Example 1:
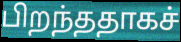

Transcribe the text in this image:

பிறந்ததாகச்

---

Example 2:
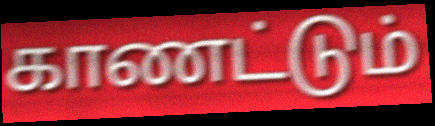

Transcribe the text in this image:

காணட்டும்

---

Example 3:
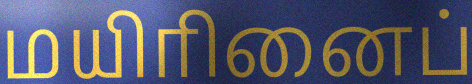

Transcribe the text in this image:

மயிரினைப்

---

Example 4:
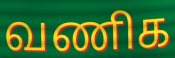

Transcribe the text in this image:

வணிக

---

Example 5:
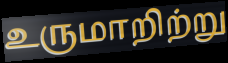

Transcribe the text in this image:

உருமாறிற்று